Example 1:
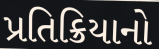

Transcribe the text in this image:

પ્રતિક્રિયાનો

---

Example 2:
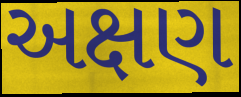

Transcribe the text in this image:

અક્ષણ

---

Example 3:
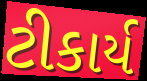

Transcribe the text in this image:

ટીકાર્ય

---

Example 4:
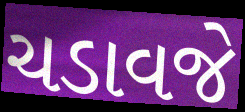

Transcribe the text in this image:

ચડાવજે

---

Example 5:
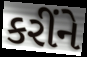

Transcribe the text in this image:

કરીંને